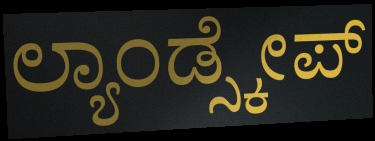
ಲ್ಯಾಂಡ್ಸ್ಕೇಪ್